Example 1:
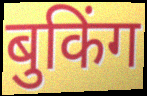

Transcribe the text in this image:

बुकिंग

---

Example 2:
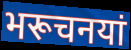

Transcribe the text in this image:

भरूचनयां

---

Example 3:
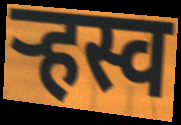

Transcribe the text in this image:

र्‍हस्व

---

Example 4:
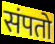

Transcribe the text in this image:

संपतो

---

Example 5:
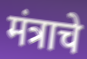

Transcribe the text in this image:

मंत्राचे